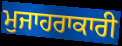
ਮੁਜਾਹਰਾਕਾਰੀ